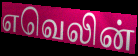
எவெலின்